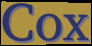
Cox